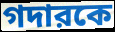
গদারকে